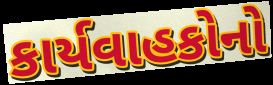
કાર્યવાહકોનો